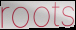
roots